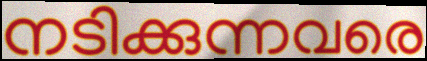
നടിക്കുന്നവരെ